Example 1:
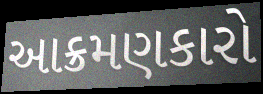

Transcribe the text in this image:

આક્રમણકારો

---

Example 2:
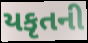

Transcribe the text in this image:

યકૃતની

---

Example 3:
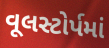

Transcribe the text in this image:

વૂલસ્ટોર્પમાં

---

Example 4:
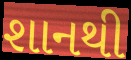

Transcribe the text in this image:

શાનથી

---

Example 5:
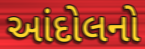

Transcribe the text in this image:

આંદોલનો